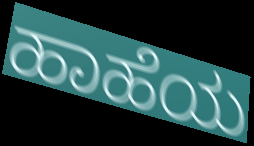
ಹಾಹೆಯ